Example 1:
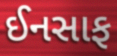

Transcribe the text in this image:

ઈનસાફ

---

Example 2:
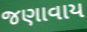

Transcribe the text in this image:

જણાવાય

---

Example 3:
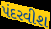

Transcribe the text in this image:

પંદરવીશ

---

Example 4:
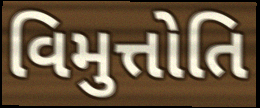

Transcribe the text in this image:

વિમુત્તોતિ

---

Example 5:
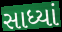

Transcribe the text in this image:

સાધ્યાં